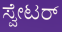
ಸ್ವೇಟರ್